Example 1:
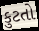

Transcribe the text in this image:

કુટતો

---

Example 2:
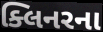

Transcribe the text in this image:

ક્લિનરના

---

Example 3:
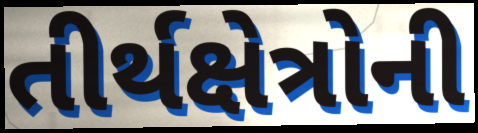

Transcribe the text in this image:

તીર્થક્ષેત્રોની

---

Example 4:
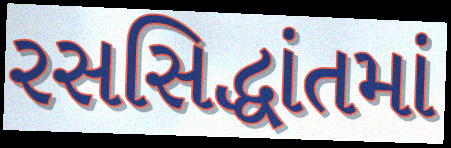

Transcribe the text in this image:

રસસિદ્ધાંતમાં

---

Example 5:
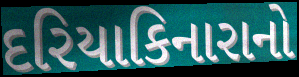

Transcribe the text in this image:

દરિયાકિનારાનો